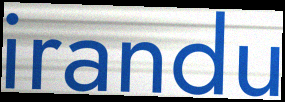
irandu